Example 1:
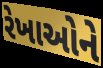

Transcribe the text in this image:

રેખાઓને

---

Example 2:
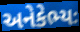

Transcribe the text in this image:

અનેકેભ્યઃ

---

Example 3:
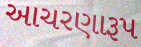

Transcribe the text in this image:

આચરણારૂપ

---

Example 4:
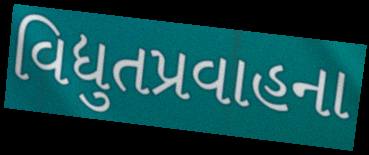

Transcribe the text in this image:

વિદ્યુતપ્રવાહના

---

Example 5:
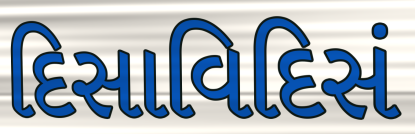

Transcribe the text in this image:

દિસાવિદિસં